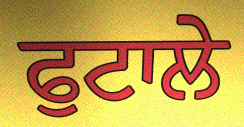
ਫੁਟਾਲੇ